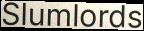
Slumlords